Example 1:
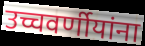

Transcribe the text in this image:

उच्चवर्णीयांना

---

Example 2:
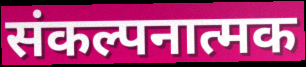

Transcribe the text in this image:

संकल्पनात्मक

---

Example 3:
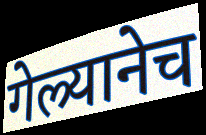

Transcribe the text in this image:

गेल्यानेच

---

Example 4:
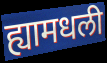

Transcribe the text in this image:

ह्यामधली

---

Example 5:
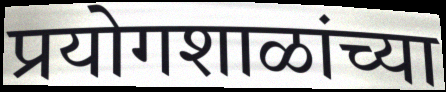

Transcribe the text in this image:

प्रयोगशाळांच्या